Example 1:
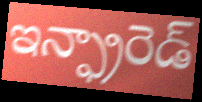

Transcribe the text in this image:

ఇన్ఫ్రారెడ్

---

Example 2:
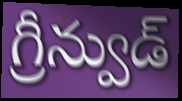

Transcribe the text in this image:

గ్రీన్వుడ్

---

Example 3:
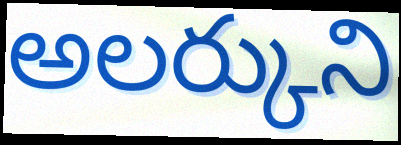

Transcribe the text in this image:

అలర్కుని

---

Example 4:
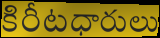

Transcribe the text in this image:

కిరీటధారులు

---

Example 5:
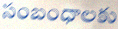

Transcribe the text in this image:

సంబంధాలకు